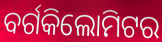
ବର୍ଗକିଲୋମିଟର